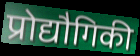
प्रोद्यौगिकी